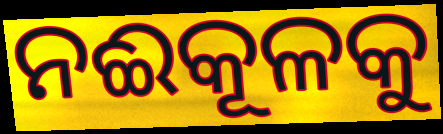
ନଈକୂଳକୁ